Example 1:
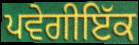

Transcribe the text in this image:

ਪਵੇਗੀਇੱਕ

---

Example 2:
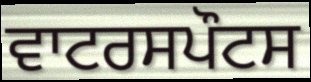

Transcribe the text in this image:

ਵਾਟਰਸਪੌਟਸ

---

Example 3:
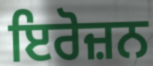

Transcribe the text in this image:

ਇਰੋਜ਼ਨ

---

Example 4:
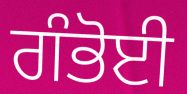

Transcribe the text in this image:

ਗੰਭੋਈ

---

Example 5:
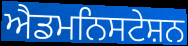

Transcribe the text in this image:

ਐਡਮਨਿਸਟੇਸ਼ਨ